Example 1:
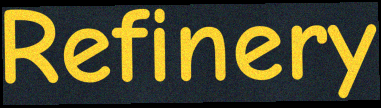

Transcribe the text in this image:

Refinery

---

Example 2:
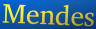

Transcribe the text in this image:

Mendes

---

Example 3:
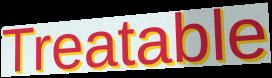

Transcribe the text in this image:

Treatable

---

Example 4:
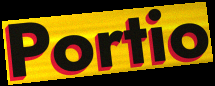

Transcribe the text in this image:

Portio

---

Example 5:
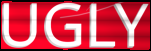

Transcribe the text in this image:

UGLY